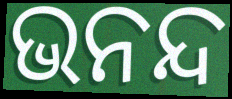
ଭନନ୍ଦ